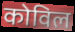
कोविल